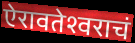
ऐरावतेश्वराचं